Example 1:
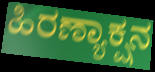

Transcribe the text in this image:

ಹಿರಣ್ಯಾಕ್ಷನ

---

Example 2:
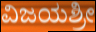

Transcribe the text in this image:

ವಿಜಯಶ್ರೀ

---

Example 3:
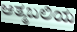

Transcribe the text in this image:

ಆತ್ಮಬಲಿಯ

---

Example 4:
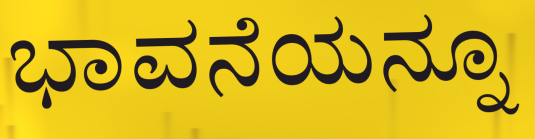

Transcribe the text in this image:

ಭಾವನೆಯನ್ನೂ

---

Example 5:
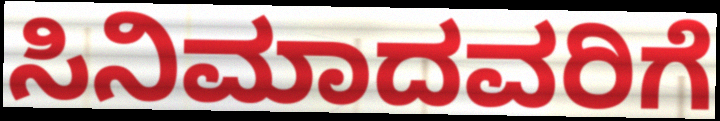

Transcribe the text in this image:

ಸಿನಿಮಾದವರಿಗೆ